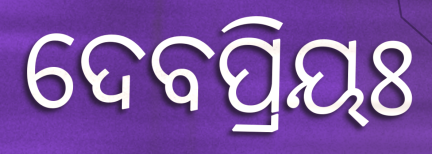
ଦେବପ୍ରିୟଃ